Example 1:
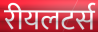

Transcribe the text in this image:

रीयलटर्स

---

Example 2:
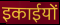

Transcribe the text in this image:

इकाईयों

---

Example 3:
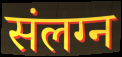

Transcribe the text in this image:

संलग्न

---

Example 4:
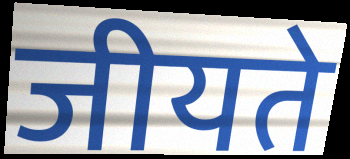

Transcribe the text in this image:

जीयते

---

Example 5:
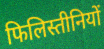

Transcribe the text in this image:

फिलिस्तीनियों